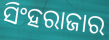
ସିଂହରାଜାର